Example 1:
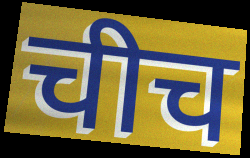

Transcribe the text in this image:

चीच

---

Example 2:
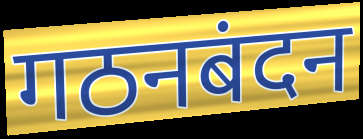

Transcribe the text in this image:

गठनबंदन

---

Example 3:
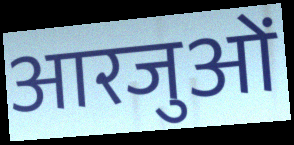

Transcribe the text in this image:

आरजुओं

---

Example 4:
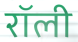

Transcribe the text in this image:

रॉली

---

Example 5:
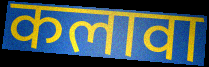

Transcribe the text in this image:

कलावा